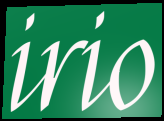
irio